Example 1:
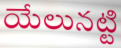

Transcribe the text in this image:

యేలునట్టి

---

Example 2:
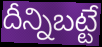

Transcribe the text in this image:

దీన్నిబట్టే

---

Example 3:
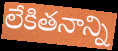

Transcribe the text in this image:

లేకితనాన్ని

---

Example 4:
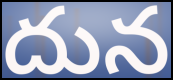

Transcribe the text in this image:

దున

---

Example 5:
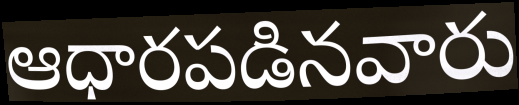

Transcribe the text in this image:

ఆధారపడినవారు